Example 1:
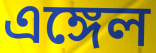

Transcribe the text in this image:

এঙ্গেল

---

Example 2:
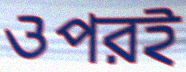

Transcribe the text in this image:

ওপরই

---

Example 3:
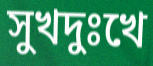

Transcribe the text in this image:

সুখদুঃখে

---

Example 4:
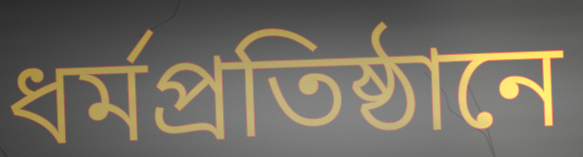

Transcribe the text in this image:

ধর্মপ্রতিষ্ঠানে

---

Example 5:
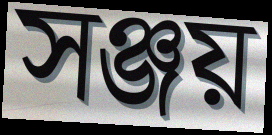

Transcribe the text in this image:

সঞ্জয়